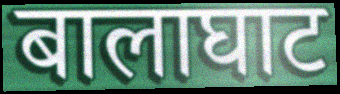
बालाघाट